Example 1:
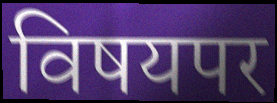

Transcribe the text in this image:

विषयपर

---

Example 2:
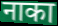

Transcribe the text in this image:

नाका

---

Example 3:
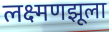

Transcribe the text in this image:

लक्ष्मणझूला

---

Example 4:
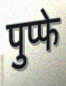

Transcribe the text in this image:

पुप्फे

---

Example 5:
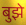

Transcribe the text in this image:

बुझे